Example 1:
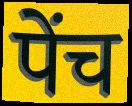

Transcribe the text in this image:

पेंच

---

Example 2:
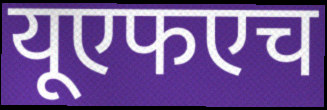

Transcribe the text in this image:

यूएफएच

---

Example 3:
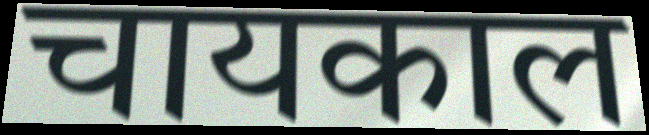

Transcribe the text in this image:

चायकाल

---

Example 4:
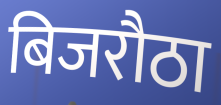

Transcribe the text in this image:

बिजरौठा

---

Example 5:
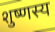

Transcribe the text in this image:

शुष्णस्य